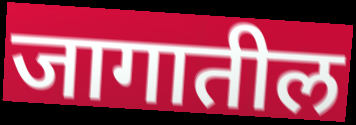
जागातील